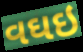
વઘઇ